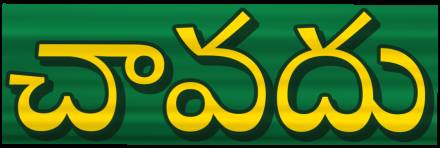
చావదు